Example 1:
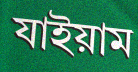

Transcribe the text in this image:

যাইয়াম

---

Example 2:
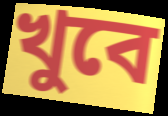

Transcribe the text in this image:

খুবে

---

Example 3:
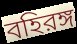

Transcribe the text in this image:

বহিরঙ্গ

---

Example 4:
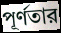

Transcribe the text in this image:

পূর্ণতার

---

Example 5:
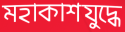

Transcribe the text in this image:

মহাকাশযুদ্ধে